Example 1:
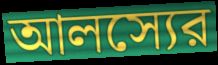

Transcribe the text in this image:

আলস্যের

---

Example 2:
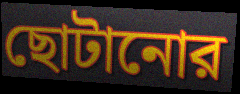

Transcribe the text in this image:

ছোটানোর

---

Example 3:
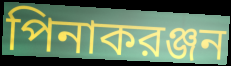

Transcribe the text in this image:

পিনাকরঞ্জন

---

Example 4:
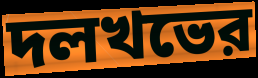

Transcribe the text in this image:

দলখভের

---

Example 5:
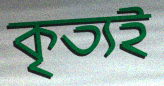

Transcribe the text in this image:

কৃত্যই